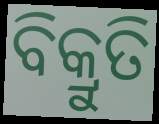
ବିକ୍ରୁତି